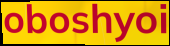
oboshyoi